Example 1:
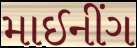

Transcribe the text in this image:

માઈનીંગ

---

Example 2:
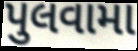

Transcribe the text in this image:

પુલવામા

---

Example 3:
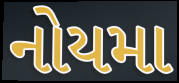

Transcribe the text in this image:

નોયમા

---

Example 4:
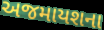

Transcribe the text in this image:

અજમાયશના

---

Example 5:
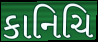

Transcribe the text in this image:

કાનિચિ